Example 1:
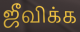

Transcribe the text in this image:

ஜீவிக்க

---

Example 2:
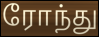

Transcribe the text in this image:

ரோந்து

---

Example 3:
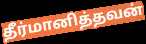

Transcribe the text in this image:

தீர்மானித்தவன்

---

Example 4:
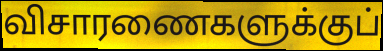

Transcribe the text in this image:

விசாரணைகளுக்குப்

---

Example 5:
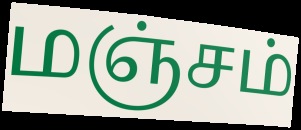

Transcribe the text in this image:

மஞ்சம்